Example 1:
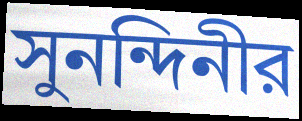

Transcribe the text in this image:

সুনন্দিনীর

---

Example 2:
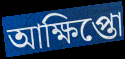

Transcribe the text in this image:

আক্ষিপ্তো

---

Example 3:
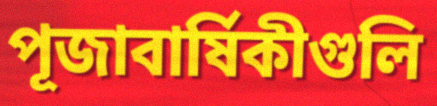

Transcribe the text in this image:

পূজাবার্ষিকীগুলি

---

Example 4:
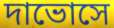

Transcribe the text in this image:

দাভোসে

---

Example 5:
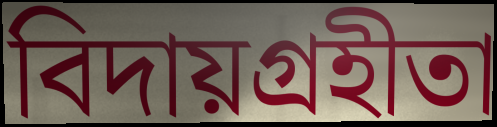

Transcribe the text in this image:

বিদায়গ্রহীতা